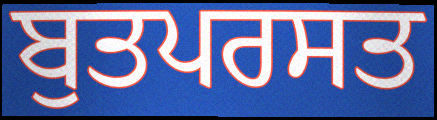
ਬੁਤਪਰਸਤ